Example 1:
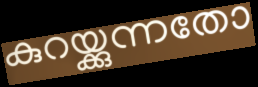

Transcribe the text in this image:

കുറയ്ക്കുന്നതോ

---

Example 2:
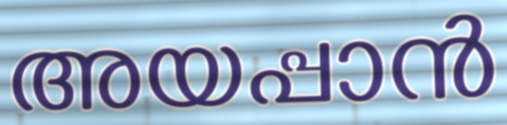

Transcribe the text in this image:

അയപ്പാൻ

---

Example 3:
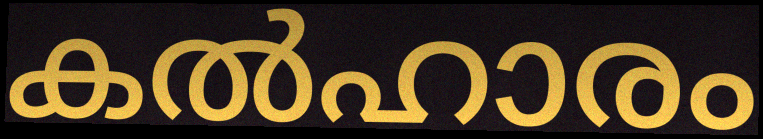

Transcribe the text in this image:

കൽഹാരം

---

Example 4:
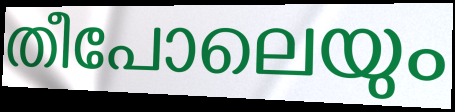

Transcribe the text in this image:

തീപോലെയും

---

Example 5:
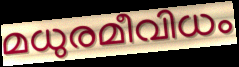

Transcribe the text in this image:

മധുരമീവിധം